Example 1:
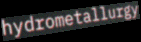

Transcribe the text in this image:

hydrometallurgy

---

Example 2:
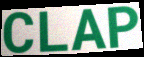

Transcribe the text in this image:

CLAP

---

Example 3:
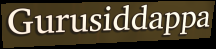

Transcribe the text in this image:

Gurusiddappa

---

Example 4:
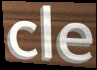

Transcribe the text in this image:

cle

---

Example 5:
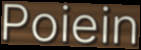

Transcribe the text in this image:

Poiein